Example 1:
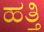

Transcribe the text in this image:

ಹತ್ತಿ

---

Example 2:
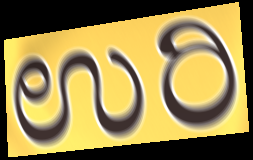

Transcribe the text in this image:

ಉರಿ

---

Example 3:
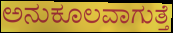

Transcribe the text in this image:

ಅನುಕೂಲವಾಗುತ್ತೆ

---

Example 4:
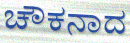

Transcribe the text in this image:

ಚೌಕನಾದ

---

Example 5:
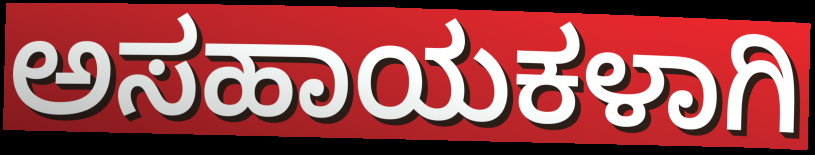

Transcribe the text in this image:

ಅಸಹಾಯಕಳಾಗಿ